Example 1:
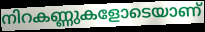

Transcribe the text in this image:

നിറകണ്ണുകളോടെയാണ്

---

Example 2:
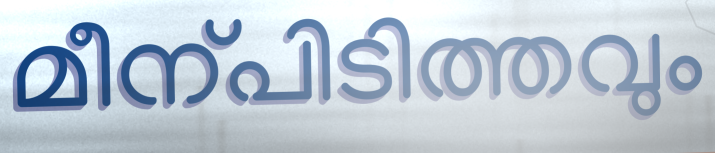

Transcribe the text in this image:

മീന്പിടിത്തവും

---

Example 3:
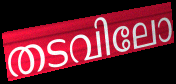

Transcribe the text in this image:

തടവിലോ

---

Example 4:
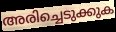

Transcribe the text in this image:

അരിച്ചെടുക്കുക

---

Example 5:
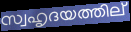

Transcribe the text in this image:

സ്വഹൃദയത്തില്